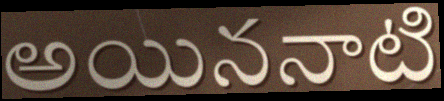
అయిననాటి